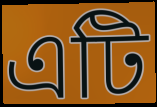
এটি